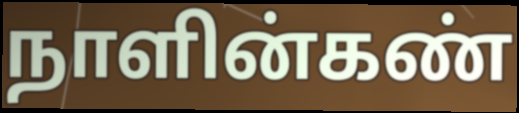
நாளின்கண்